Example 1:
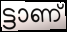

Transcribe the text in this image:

ട്ടാണ്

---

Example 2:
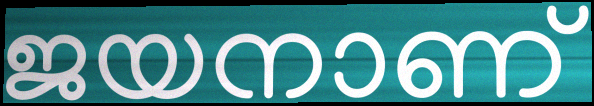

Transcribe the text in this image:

ജയനാണ്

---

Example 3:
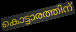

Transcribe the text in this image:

കൊട്ടാരത്തിന്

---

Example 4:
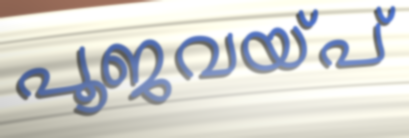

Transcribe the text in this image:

പൂജവയ്പ്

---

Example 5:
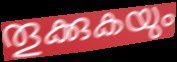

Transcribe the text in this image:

തൂക്കുകയും